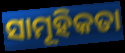
ସାମୂହିକତା